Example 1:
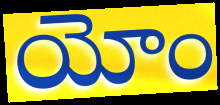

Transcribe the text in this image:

యోం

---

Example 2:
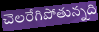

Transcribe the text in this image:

చెలరేగిపోతున్నది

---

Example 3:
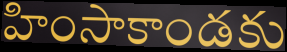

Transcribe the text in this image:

హింసాకాండకు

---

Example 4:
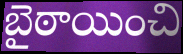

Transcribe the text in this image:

బైఠాయించి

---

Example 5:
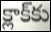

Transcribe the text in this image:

క్లాక్‌కు